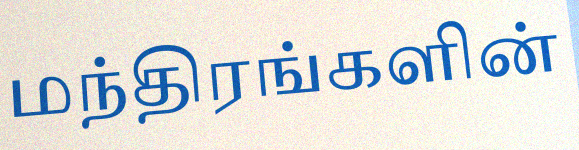
மந்திரங்களின்